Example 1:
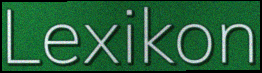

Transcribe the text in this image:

Lexikon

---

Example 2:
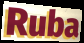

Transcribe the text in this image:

Ruba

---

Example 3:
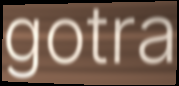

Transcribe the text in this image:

gotra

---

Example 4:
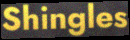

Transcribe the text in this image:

Shingles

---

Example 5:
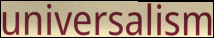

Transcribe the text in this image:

universalism